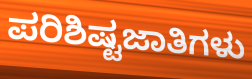
ಪರಿಶಿಷ್ಟಜಾತಿಗಳು